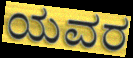
ಯವರ